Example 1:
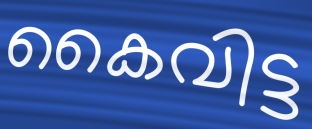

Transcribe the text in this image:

കൈവിട്ട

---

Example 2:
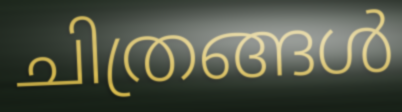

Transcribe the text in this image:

ചിത്രങ്ങൾ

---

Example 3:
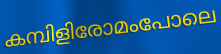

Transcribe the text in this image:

കമ്പിളിരോമംപോലെ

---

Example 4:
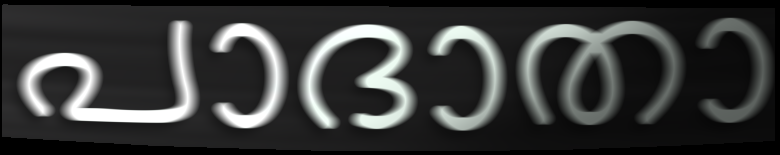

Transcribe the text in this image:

പാദാതാ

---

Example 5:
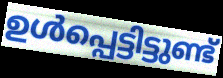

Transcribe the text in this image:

ഉൾപ്പെട്ടിട്ടുണ്ട്